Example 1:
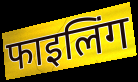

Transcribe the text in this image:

फाइलिंग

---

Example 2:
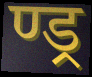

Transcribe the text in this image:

ण्ड्र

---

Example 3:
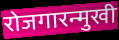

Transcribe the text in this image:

रोजगारन्मुखी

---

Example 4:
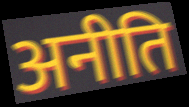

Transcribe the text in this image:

अनीति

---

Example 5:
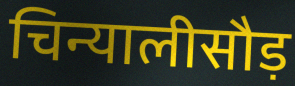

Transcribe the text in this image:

चिन्यालीसौड़